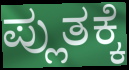
ಪ್ಲುತಕ್ಕೆ